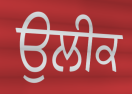
ਉਲੀਕ